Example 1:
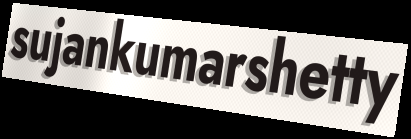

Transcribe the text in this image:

sujankumarshetty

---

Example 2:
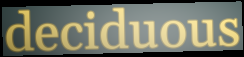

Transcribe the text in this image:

deciduous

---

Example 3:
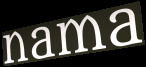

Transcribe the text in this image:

nama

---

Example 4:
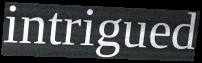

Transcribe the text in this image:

intrigued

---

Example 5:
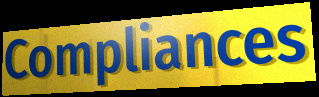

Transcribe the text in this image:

Compliances